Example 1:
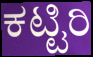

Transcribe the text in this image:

ಕಟ್ಟಿರಿ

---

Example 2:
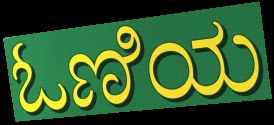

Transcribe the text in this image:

ಓಣಿಯ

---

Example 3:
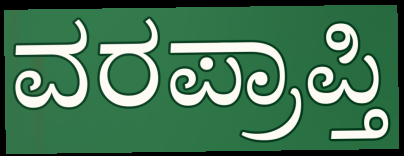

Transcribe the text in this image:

ವರಪ್ರಾಪ್ತಿ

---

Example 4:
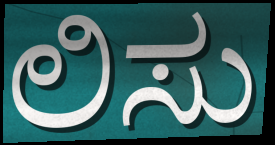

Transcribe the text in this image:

ಲಿಸು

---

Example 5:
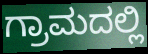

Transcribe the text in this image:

ಗ್ರಾಮದಲ್ಲಿ